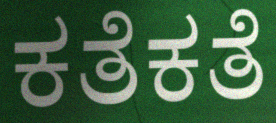
ಕತೆಕತೆ